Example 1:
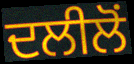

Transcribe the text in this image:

ਦਲੀਲੋਂ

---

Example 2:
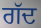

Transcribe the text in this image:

ਗੱਦ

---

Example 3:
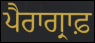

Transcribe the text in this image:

ਪੈਰਾਗ੍ਰਾਫ਼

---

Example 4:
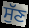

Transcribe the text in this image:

ਸੁੱਣ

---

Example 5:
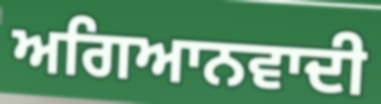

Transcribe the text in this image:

ਅਗਿਆਨਵਾਦੀ